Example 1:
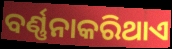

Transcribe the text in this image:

ବର୍ଣ୍ଣନାକରିଥାଏ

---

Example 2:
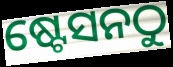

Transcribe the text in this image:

ଷ୍ଟେସନଠୁ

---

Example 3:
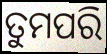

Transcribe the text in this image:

ତୁମପରି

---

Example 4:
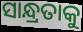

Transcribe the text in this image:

ସାନ୍ଧ୍ରତାକୁ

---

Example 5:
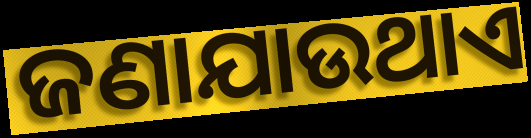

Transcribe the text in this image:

ଜଣାଯାଉଥାଏ